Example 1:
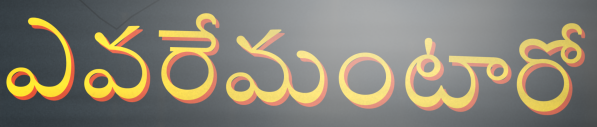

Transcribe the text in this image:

ఎవరేమంటారో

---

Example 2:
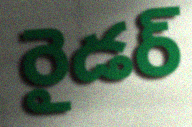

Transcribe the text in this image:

రైడర్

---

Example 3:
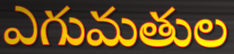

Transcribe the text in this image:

ఎగుమతుల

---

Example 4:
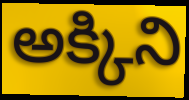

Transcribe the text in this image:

అక్కిని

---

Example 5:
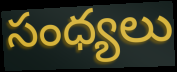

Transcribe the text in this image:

సంధ్యలు